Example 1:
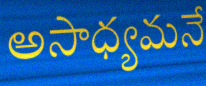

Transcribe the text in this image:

అసాధ్యమనే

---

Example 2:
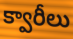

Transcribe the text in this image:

క్వారీలు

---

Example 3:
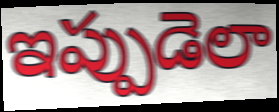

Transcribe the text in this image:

ఇప్పుడెలా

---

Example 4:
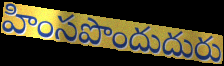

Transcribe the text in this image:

హింసపొందుదురు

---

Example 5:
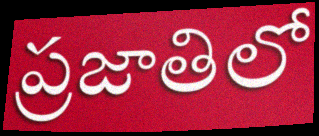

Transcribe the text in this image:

ప్రజాతిలో